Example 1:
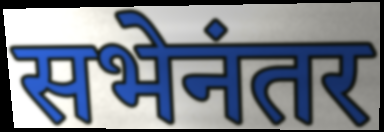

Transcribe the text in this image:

सभेनंतर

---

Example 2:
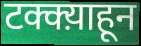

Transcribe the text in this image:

टक्क्य़ाहून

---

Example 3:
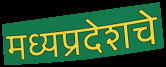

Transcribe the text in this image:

मध्यप्रदेशचे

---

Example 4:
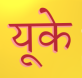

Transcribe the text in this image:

यूके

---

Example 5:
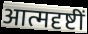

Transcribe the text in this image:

आत्मदृष्टीं